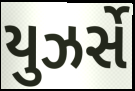
યુઝર્સે